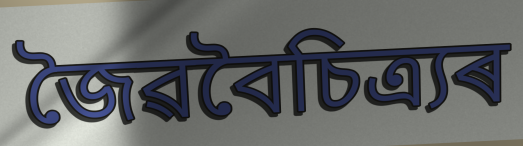
জৈৱবৈচিত্ৰ্যৰ